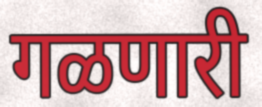
गळणारी